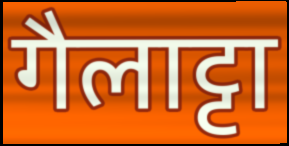
गैलाट्टा